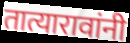
तात्यारावांनी